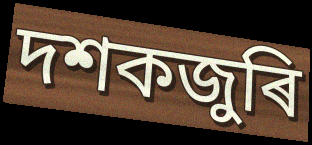
দশকজুৰি